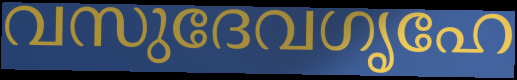
വസുദേവഗൃഹേ